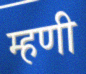
म्हणी